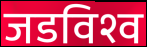
जडविश्व